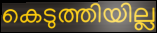
കെടുത്തിയില്ല